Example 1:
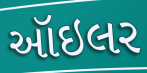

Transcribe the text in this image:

ઑઇલર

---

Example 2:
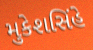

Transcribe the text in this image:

મુકેશસિંહે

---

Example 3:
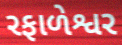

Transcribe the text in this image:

રફાળેશ્વર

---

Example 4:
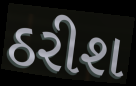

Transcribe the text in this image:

ઠરીશ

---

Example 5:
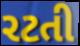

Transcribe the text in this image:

રટતી